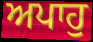
ਅਪਾਹੁ